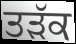
ਤੜੱਕ